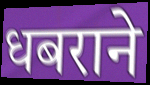
धबराने